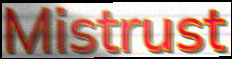
Mistrust